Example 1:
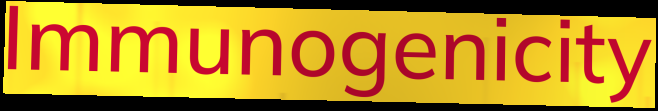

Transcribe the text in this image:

Immunogenicity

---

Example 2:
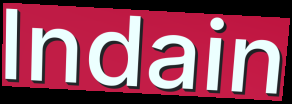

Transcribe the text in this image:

Indain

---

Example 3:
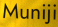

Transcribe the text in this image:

Muniji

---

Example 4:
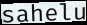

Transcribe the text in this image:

sahelu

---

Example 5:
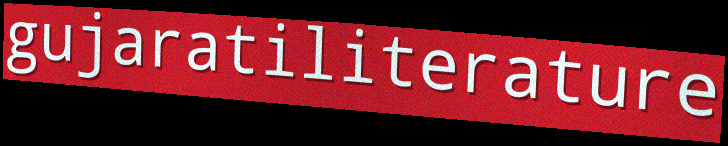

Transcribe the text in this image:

gujaratiliterature